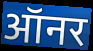
ऑनर